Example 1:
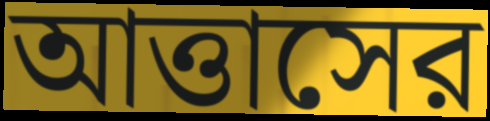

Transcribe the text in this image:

আত্তাসের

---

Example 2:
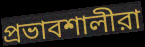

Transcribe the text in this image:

প্রভাবশালীরা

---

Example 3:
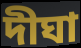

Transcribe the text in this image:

দীঘা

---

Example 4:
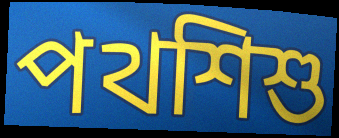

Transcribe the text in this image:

পথশিশু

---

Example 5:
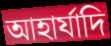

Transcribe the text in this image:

আহার্যাদি